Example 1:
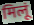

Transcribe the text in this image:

मिलूं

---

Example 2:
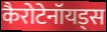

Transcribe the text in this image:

कैरोटेनॉयड्स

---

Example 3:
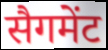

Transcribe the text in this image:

सैगमेंट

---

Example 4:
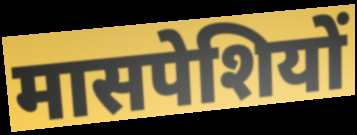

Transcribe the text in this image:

मासपेशियों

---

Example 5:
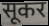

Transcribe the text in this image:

सूकर